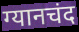
ग्यानचंद